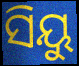
ସିୟୁ